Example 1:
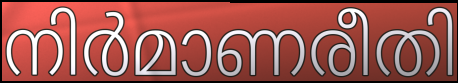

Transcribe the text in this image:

നിർമാണരീതി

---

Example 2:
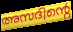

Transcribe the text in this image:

അസദിന്റെ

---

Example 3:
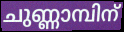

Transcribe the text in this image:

ചുണ്ണാമ്പിന്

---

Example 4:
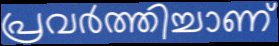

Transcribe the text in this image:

പ്രവർത്തിച്ചാണ്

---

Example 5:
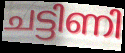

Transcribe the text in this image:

ചട്ടിണി